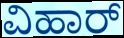
ವಿಹಾರ್